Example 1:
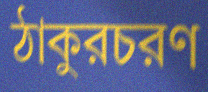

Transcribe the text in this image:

ঠাকুরচরণ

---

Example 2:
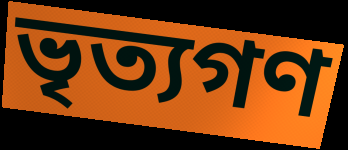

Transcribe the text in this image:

ভৃত্যগণ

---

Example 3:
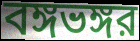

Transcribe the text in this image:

বঙ্গভঙ্গর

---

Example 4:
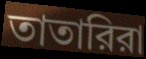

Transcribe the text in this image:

তাতারিরা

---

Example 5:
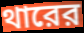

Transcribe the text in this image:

থারের